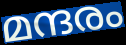
മന്ദരം